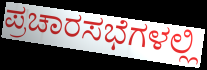
ಪ್ರಚಾರಸಭೆಗಳಲ್ಲಿ